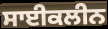
ਸਾਈਕਲੀਨ